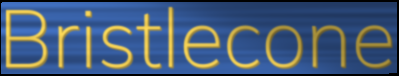
Bristlecone